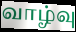
வாழ்வு